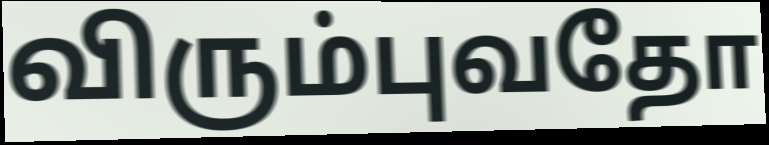
விரும்புவதோ